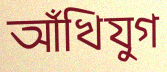
আঁখিযুগ